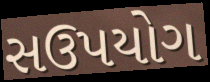
સઉપયોગ